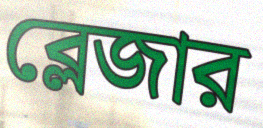
ব্লেজার